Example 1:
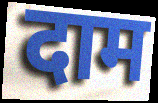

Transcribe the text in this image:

दाम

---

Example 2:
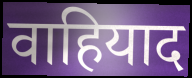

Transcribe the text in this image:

वाहियाद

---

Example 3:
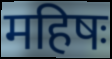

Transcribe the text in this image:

महिषः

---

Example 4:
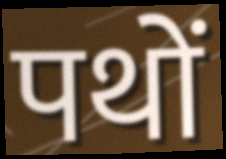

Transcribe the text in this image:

पथों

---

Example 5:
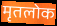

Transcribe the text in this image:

मृतलोक